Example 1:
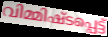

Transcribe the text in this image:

വിമ്മിഷ്ടപ്പെട്ട്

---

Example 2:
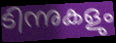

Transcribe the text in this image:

ടിന്നുകളും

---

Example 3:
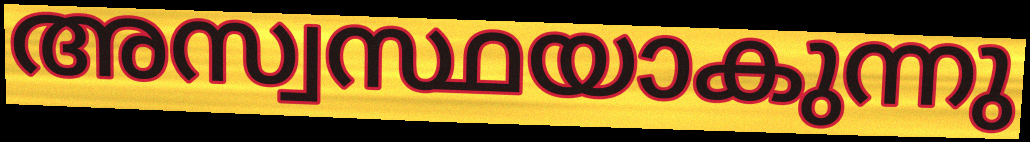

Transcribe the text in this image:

അസ്വസ്ഥയാകുന്നു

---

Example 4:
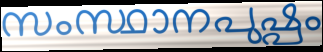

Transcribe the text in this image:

സംസ്ഥാനപുഷ്പം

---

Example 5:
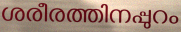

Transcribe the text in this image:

ശരീരത്തിനപ്പുറം